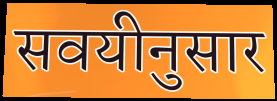
सवयीनुसार